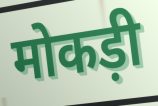
मोकड़ी